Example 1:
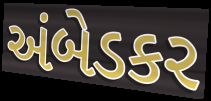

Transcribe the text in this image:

અંબેડકર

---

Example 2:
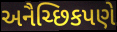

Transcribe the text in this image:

અનૈચ્છિકપણે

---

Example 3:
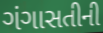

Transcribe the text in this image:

ગંગાસતીની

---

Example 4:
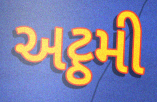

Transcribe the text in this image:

અટ્ઠમી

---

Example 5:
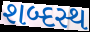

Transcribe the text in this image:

શબ્દસ્થ